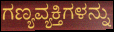
ಗಣ್ಯವ್ಯಕ್ತಿಗಳನ್ನು